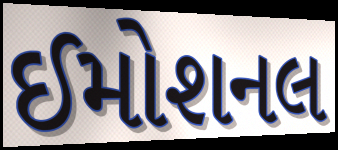
ઈમોશનલ